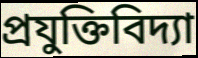
প্রযুক্তিবিদ্যা